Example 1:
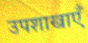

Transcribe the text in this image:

उपशाखाएँ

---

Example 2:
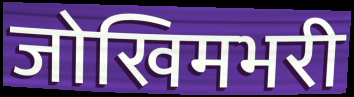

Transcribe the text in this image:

जोखिमभरी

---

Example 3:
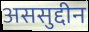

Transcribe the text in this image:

अससुद्दीन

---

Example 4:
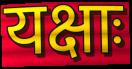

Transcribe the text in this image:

यक्षाः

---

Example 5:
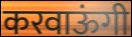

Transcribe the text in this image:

करवाऊंगी